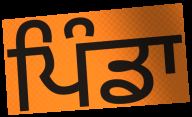
ਪਿੰਡਾ